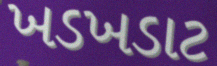
ખડખડાટ